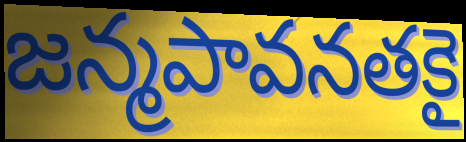
జన్మపావనతకై